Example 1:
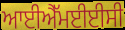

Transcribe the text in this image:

ਆਈਐੱਮਈਈਸੀ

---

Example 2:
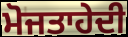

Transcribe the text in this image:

ਮੋਜਤਾਹੇਦੀ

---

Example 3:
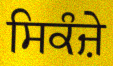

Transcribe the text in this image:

ਸਿਕੰਜ਼ੇ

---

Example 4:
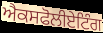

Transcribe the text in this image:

ਐਕਸਫੋਲੀਏਟਿੰਗ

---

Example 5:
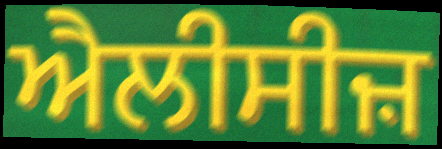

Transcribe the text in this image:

ਐਲੀਸੀਜ਼